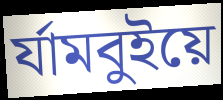
র্যামবুইয়ে